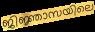
ജിജ്ഞാസയിലെ